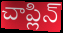
చాప్లిన్